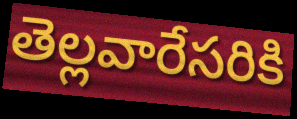
తెల్లవారేసరికి